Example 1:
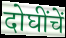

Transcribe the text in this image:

दोघींचें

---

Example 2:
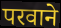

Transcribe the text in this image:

परवाने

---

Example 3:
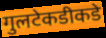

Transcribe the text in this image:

गुलटेकडीकडे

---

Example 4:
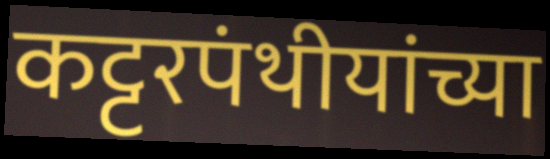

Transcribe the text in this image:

कट्टरपंथीयांच्या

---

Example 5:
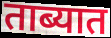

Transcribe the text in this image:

ताब्यात